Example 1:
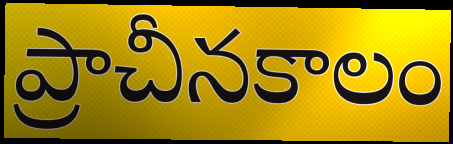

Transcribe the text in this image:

ప్రాచీనకాలం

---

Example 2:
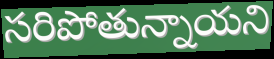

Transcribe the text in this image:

సరిపోతున్నాయని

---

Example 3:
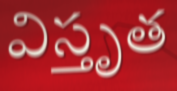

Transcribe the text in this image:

విస్తృత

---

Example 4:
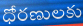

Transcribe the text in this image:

ధోరణులకు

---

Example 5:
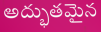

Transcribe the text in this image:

అద్భుతమైన